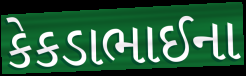
કેકડાભાઈના